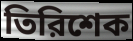
তিরিশেক